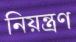
নিয়ন্ত্ৰণ